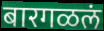
बारगळलं